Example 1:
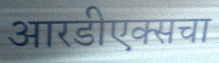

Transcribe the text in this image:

आरडीएक्सचा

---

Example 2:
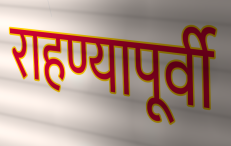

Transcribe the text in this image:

राहण्यापूर्वी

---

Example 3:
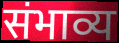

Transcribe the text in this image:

संभाव्य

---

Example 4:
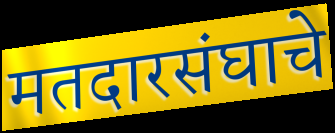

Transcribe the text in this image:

मतदारसंघाचे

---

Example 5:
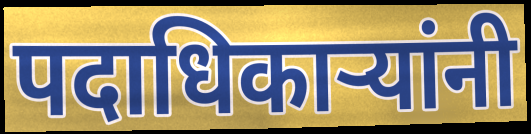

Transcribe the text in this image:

पदाधिकाऱ्यांनी